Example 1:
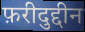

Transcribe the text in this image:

फ़रीदुद्दीन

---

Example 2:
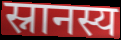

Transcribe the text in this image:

स्नानस्य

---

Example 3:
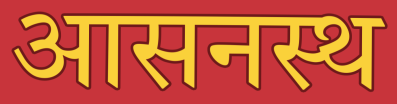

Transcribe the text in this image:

आसनस्थ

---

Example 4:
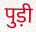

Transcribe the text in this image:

पुड़ी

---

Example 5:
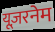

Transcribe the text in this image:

यूज़रनेम